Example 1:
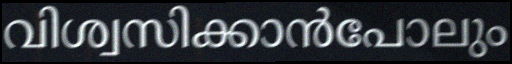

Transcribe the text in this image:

വിശ്വസിക്കാൻപോലും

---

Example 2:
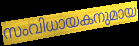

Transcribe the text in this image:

സംവിധായകനുമായ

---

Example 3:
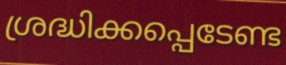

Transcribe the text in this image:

ശ്രദ്ധിക്കപ്പെടേണ്ട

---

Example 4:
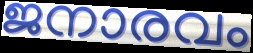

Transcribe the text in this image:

ജനാരവം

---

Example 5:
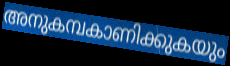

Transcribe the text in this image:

അനുകമ്പകാണിക്കുകയും